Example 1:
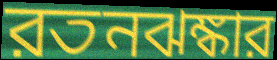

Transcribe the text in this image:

রতনঝঙ্কার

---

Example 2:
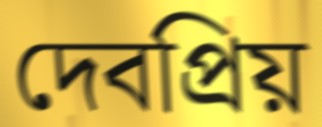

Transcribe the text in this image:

দেবপ্রিয়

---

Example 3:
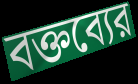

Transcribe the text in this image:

বক্তব্যের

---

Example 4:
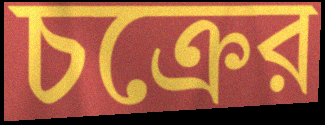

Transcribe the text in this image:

চক্রের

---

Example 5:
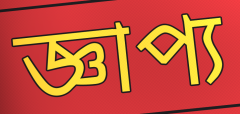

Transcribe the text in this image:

জ্ঞাপ্য